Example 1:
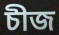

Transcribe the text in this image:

চীজ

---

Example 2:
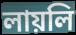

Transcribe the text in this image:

লায়লি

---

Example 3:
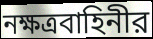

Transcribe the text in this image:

নক্ষত্রবাহিনীর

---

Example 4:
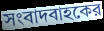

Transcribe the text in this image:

সংবাদবাহকের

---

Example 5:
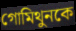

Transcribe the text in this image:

গোমিথুনকে